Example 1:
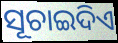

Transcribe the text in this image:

ସୂଚାଇଦିଏ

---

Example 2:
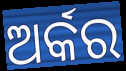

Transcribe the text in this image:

ଅର୍କର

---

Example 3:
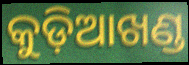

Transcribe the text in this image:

କୁଡ଼ିଆଖଣ୍ଡ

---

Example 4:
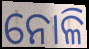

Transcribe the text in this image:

ନୋଳି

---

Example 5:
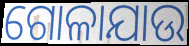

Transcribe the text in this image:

ଗୋଳାଯାଉ